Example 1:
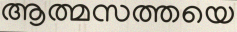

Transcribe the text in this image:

ആത്മസത്തയെ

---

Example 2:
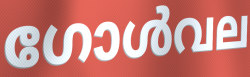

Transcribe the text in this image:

ഗോൾവല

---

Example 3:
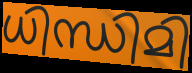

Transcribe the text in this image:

ധിന്ധിമി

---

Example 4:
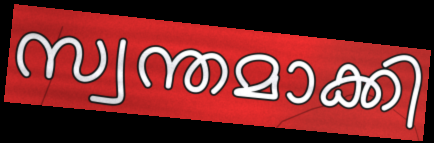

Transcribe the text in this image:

സ്വന്തമാക്കി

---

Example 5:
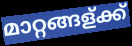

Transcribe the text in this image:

മാറ്റങ്ങള്ക്ക്